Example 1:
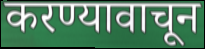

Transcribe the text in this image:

करण्यावाचून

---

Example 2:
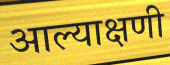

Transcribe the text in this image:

आल्याक्षणी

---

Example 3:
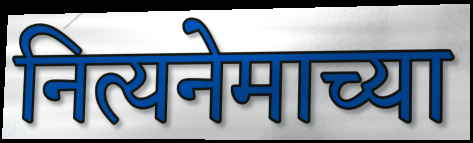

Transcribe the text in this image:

नित्यनेमाच्या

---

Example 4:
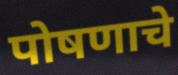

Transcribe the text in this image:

पोषणाचे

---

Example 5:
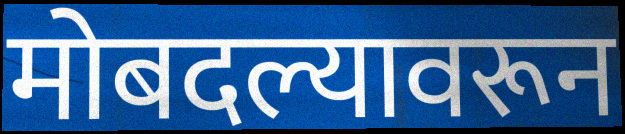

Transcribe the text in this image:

मोबदल्यावरून